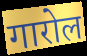
गारोल